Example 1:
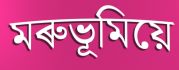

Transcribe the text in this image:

মৰুভূমিয়ে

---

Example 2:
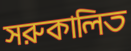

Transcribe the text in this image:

সৰুকালিত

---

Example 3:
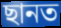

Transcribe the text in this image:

ছানত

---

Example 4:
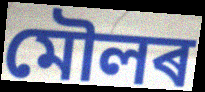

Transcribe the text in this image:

মৌলৰ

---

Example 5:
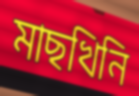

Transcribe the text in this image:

মাছখিনি